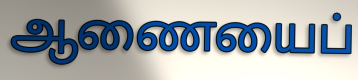
ஆணையைப்